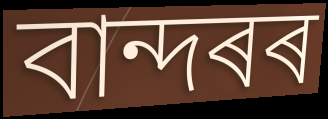
বান্দৰৰ